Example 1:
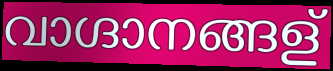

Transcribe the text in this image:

വാഗ്ദാനങ്ങള്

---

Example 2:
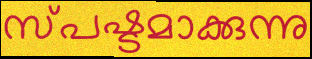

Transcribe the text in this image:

സ്പഷ്ടമാക്കുന്നു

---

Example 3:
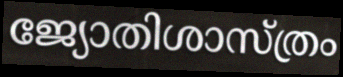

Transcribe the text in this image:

ജ്യോതിശാസ്ത്രം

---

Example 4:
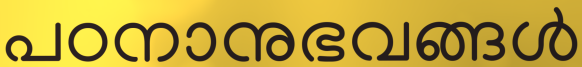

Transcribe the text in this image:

പഠനാനുഭവങ്ങൾ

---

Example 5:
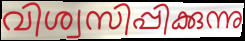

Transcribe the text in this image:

വിശ്വസിപ്പിക്കുന്നു